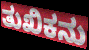
ತುಖಿಕನು